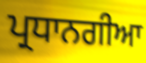
ਪ੍ਰਧਾਨਗੀਆ